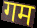
गम